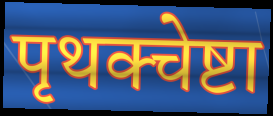
पृथक्चेष्टा